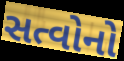
સત્વોનો